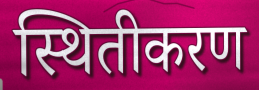
स्थितीकरण